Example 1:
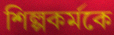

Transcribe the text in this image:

শিল্পকর্মকে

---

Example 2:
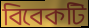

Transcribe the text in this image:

বিবেকটি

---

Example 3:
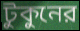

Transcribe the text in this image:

টুকুনের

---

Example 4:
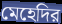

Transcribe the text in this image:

মেহেদির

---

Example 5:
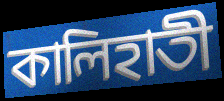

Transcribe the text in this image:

কালিহাতী